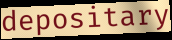
depositary